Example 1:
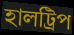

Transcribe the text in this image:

হালট্রিপ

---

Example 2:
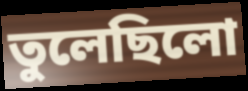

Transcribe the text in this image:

তুলেছিলো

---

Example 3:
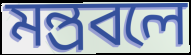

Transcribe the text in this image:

মন্ত্রবলে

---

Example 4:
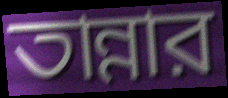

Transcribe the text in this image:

তান্নার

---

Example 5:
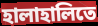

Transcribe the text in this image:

হালাহালিতে